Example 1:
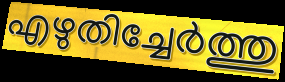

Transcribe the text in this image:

എഴുതിച്ചേർത്തു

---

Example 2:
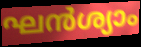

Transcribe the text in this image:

ഘൻശ്യാം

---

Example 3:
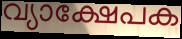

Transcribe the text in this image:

വ്യാക്ഷേപക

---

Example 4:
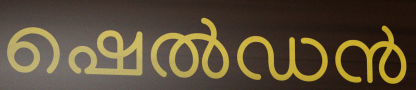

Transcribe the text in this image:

ഷെൽഡൻ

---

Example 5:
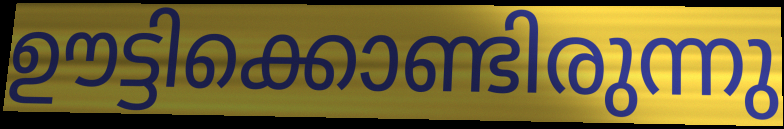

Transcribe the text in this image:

ഊട്ടിക്കൊണ്ടിരുന്നു